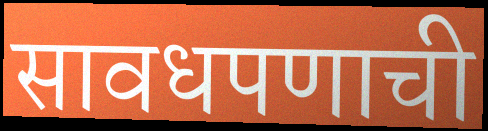
सावधपणाची